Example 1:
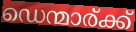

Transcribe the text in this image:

ഡെന്മാര്ക്ക്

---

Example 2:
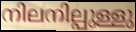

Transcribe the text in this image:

നിലനില്പുള്ളു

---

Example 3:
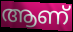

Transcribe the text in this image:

ആണ്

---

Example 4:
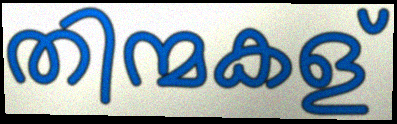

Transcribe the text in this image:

തിന്മകള്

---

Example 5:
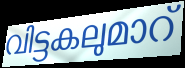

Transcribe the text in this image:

വിട്ടകലുമാറ്